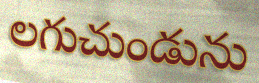
లగుచుండును